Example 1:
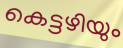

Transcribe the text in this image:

കെട്ടഴിയും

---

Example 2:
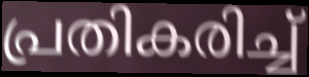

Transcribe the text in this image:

പ്രതികരിച്ച്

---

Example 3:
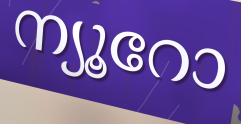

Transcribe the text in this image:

ന്യൂറോ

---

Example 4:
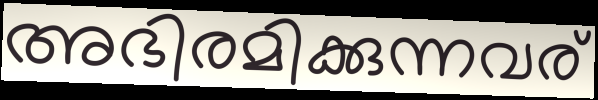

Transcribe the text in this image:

അഭിരമിക്കുന്നവര്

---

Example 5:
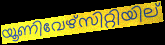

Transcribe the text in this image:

യൂണിവേഴ്സിറ്റിയില്